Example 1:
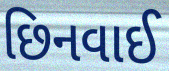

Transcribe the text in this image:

છિનવાઈ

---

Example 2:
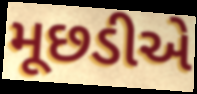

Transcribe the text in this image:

મૂછડીએ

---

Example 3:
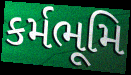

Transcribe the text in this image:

કર્મભૂમિ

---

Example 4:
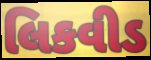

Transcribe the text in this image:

લિકવીડ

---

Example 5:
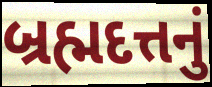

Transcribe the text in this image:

બ્રહ્મદત્તનું